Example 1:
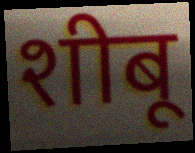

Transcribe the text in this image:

शीबू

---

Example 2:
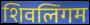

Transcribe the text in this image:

शिवलिंगम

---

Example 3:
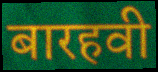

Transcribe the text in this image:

बारहवी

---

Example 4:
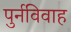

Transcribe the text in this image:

पुर्नविवाह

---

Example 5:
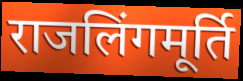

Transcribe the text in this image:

राजलिंगमूर्ति